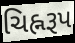
ચિહ્નરૂપ